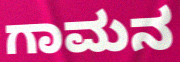
ಗಾಮನ